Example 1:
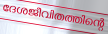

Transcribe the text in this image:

ദേശജീവിതത്തിന്റെ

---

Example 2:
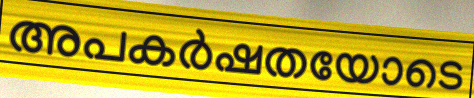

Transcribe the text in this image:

അപകർഷതയോടെ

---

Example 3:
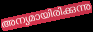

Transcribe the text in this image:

അന്യമായിരിക്കുന്നു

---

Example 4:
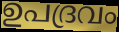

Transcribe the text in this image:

ഉപദ്രവം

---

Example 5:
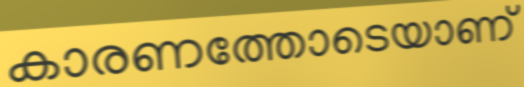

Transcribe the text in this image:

കാരണത്തോടെയാണ്